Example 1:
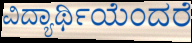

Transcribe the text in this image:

ವಿದ್ಯಾರ್ಥಿಯೆಂದರೆ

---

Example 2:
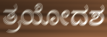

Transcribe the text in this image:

ತ್ರಯೋದಶ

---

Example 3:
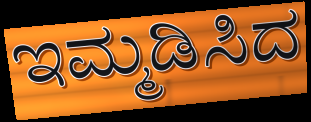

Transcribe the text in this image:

ಇಮ್ಮಡಿಸಿದ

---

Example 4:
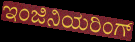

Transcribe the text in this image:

ಇಂಜಿನಿಯರಿಂಗ್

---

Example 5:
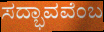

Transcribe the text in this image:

ಸದ್ಭಾವವೆಂಬ